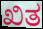
ಖಿತ